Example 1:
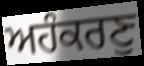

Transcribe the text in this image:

ਅਹੰਕਰਣੁ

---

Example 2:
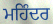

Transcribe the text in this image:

ਮਹਿੰਦਰ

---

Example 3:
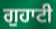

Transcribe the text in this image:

ਗੁਹਾਟੀ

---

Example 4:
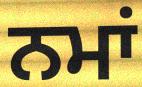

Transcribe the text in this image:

ਨਮਾਂ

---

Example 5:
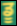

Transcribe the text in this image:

ਡੂ